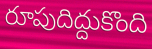
రూపుదిద్దుకొంది